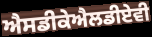
ਐਸਡੀਕੇਐਲਡੀਏਵੀ